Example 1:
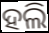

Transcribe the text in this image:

ହଲି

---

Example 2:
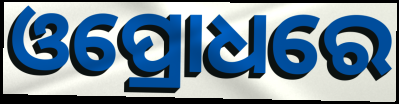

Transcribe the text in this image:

ଓପ୍ରୋଧରେ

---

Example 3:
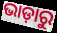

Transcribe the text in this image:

ଭାଡ଼ାରୁ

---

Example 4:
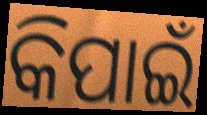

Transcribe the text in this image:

କିପାଇଁ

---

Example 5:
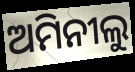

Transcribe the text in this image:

ଅମିନୀଲୁ